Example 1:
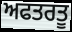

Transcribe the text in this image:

ਅਫਤਰਤੂ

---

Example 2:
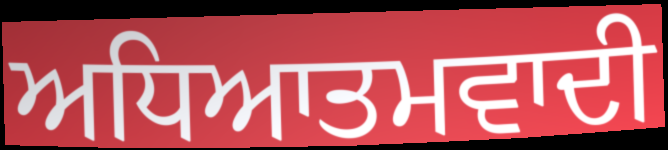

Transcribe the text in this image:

ਅਧਿਆਤਮਵਾਦੀ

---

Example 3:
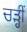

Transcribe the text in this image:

ਚੜ੍ਹੀਂ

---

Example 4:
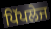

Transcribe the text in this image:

ਪਿੱਪਲੇਜ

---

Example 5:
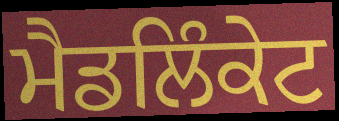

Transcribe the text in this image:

ਮੈਡਲਿੰਕੇਟ